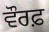
ਵੌਰਫ਼